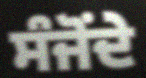
ਸੰਜੋਂਦੇ